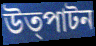
উত্পাটন